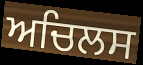
ਅਚਿਲਸ